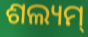
ଶଲ୍ୟମ୍